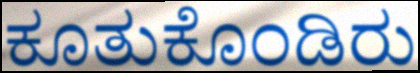
ಕೂತುಕೊಂಡಿರು